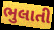
ભુલાતી